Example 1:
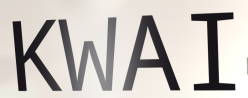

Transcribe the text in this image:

KWAI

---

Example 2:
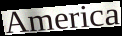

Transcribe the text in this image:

America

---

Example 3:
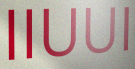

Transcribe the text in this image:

IIUUI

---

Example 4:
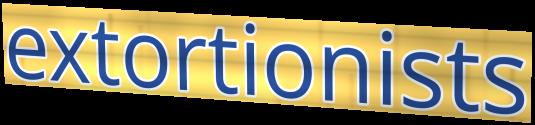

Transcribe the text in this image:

extortionists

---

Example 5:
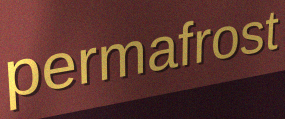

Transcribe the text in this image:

permafrost